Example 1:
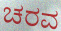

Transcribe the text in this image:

ಚರವ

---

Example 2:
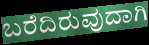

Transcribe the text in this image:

ಬರೆದಿರುವುದಾಗಿ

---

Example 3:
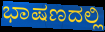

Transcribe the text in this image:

ಭಾಷಣದಲ್ಲಿ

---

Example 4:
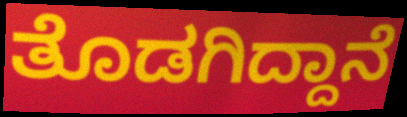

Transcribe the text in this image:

ತೊಡಗಿದ್ದಾನೆ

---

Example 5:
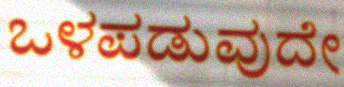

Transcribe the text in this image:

ಒಳಪಡುವುದೇ